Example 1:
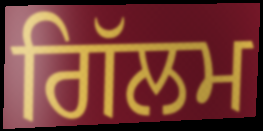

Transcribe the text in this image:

ਗਿੱਲਮ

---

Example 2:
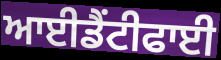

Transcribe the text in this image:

ਆਈਡੈਂਟੀਫਾਈ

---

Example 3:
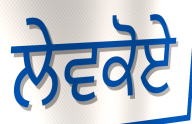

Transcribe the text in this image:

ਲੇਵਕੋਏ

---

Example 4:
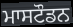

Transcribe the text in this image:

ਮਾਸਟੌਡਨ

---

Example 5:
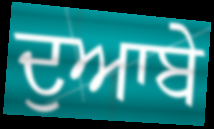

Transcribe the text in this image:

ਦੁਆਬੇ